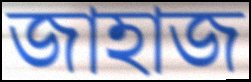
জাহাজ